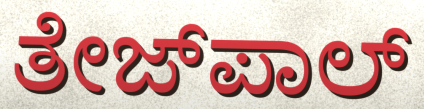
ತೇಜ್‌ಪಾಲ್